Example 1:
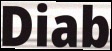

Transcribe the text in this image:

Diab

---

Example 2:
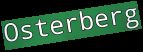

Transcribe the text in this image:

Osterberg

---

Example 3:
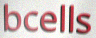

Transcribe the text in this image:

bcells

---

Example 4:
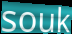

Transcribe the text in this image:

souk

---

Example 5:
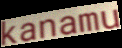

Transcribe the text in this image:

kanamu